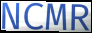
NCMR